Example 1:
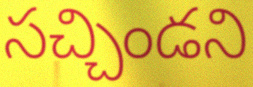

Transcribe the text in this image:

సచ్చిండని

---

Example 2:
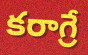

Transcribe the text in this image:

కరాగ్రే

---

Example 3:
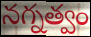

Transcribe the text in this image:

నగ్నత్వం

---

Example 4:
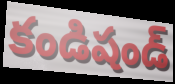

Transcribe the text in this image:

కండిషండ్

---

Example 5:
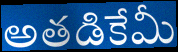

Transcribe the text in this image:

అతడికేమీ